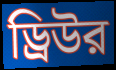
ড্রিউর